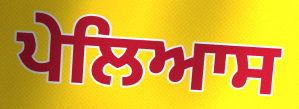
ਪੇਲਿਆਸ